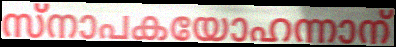
സ്നാപകയോഹന്നാന്